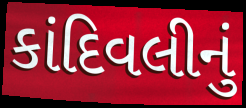
કાંદિવલીનું